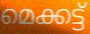
മെക്കട്ട്